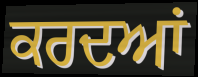
ਕਰਦਆਂ